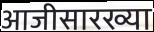
आजीसारख्या